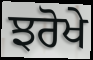
ਝਰੋਖੇ